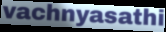
vachnyasathi